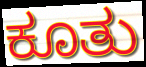
ಕೂತು